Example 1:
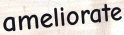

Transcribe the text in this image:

ameliorate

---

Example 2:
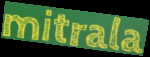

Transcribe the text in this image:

mitrala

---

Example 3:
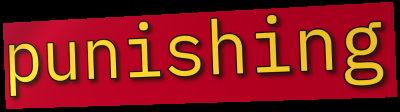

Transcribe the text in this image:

punishing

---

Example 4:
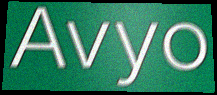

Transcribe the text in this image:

Avyo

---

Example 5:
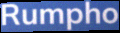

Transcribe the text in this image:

Rumpho